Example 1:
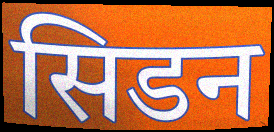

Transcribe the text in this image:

सिडन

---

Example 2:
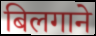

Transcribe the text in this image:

बिलगाने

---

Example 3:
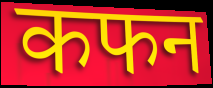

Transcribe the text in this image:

कफन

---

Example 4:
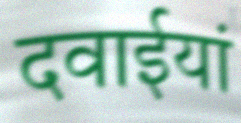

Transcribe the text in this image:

दवाईयां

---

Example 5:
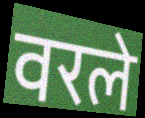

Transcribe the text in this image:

वरले